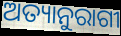
ଅତ୍ୟାନୁରାଗୀ